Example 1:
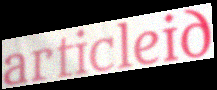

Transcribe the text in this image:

articleid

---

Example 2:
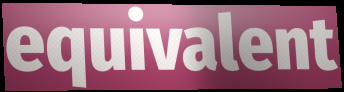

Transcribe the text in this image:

equivalent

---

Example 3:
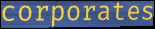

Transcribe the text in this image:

corporates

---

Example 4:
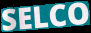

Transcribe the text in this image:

SELCO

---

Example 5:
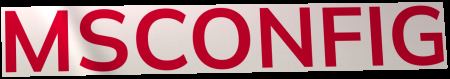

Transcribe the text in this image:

MSCONFIG